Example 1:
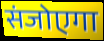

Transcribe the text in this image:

संजोएगा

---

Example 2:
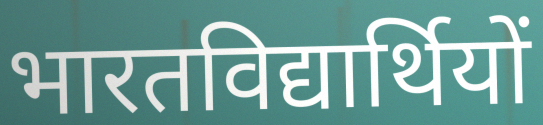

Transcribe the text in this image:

भारतविद्यार्थियों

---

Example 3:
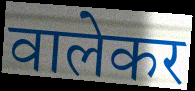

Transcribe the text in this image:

वालेकर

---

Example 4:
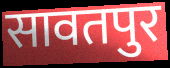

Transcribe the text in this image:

सावतपुर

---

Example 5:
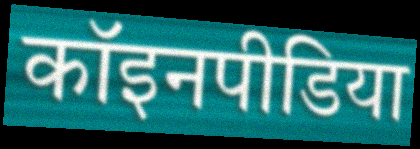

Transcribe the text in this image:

कॉइनपीडिया